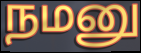
நமனு